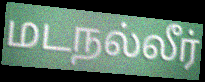
மடநல்லீர்